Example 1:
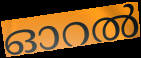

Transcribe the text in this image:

ഓറൽ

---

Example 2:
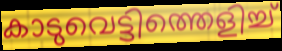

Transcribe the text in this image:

കാടുവെട്ടിത്തെളിച്ച്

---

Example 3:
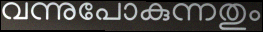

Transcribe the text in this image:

വന്നുപോകുന്നതും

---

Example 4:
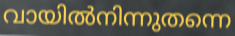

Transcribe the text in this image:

വായിൽനിന്നുതന്നെ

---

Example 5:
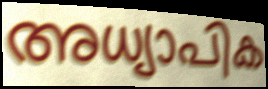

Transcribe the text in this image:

അധ്യാപിക